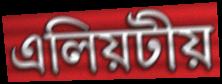
এলিয়টীয়